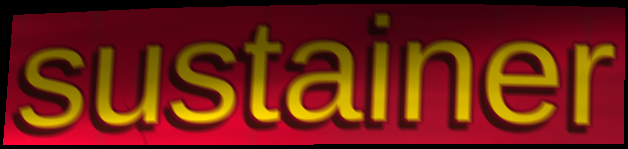
sustainer